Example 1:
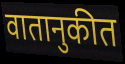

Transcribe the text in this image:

वातानुकीत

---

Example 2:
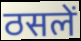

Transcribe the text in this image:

ठसलें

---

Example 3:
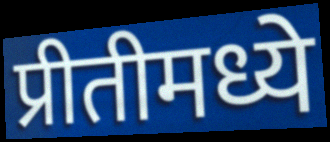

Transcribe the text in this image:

प्रीतीमध्ये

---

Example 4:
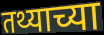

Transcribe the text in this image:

तथ्याच्या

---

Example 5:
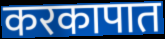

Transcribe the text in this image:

करकापात